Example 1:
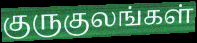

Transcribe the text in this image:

குருகுலங்கள்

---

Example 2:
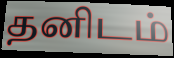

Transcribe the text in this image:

தனிடம்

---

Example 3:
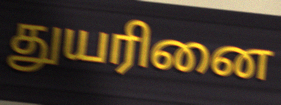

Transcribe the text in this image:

துயரினை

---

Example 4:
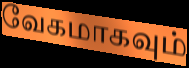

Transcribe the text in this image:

வேகமாகவும்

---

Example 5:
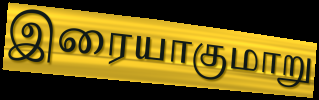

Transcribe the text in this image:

இரையாகுமாறு